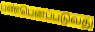
பண்பெனப்படுவது